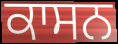
ਕਾਸਨ